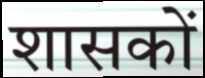
शासकों